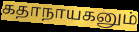
கதாநாயகனும்